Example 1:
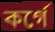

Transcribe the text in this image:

কর্গে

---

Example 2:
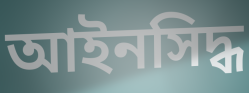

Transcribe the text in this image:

আইনসিদ্ধ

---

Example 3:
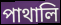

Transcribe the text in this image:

পাথালি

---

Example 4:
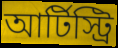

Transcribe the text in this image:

আর্টিস্ট্রি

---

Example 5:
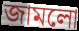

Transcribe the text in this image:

জামলো